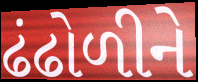
ઢંઢોળીને